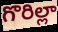
గొరిల్లా